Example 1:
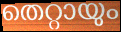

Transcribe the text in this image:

തെറ്റായും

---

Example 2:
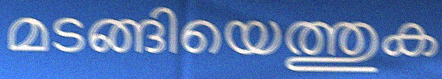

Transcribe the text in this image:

മടങ്ങിയെത്തുക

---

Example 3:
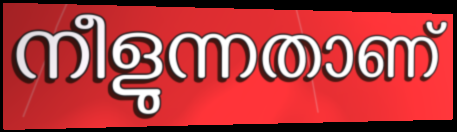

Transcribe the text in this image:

നീളുന്നതാണ്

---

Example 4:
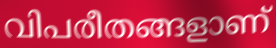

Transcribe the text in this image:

വിപരീതങ്ങളാണ്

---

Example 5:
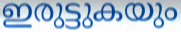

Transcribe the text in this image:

ഇരുട്ടുകയും